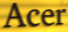
Acer